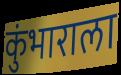
कुंभाराला